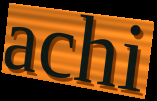
achi